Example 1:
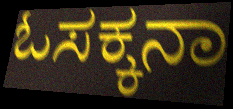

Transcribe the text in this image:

ಓಸಕ್ಕನಾ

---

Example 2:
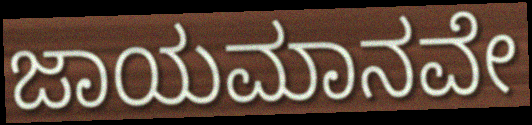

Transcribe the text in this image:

ಜಾಯಮಾನವೇ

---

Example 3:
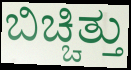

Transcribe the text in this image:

ಬಿಚ್ಚಿತ್ತು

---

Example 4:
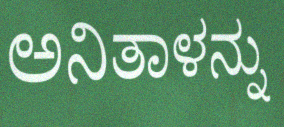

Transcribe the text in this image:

ಅನಿತಾಳನ್ನು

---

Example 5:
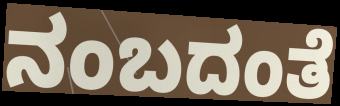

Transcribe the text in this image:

ನಂಬದಂತೆ